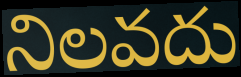
నిలవదు